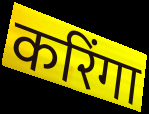
करिंगा